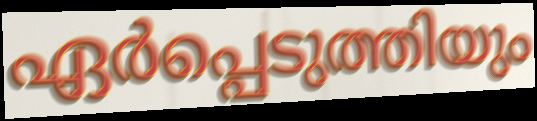
ഏർപ്പെടുത്തിയും